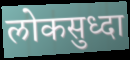
लोकसुध्दा